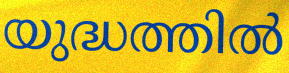
യുദ്ധത്തിൽ